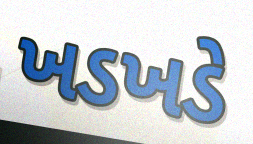
ખડખડે